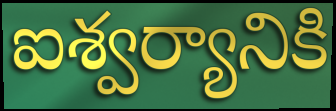
ఐశ్వర్యానికి